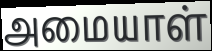
அமையாள்